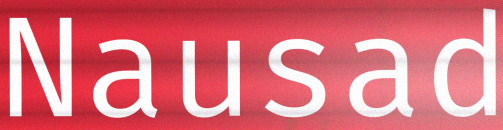
Nausad